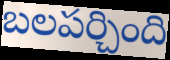
బలపర్చింది